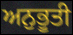
ਅਨੁਭੂਤੀ